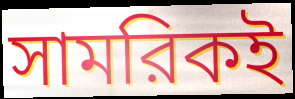
সামরিকই